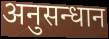
अनुसन्धान